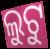
ଲୁଟୁ